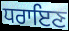
ਧਰਾਇਣ